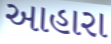
આહારા